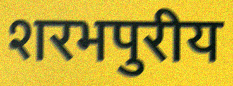
शरभपुरीय